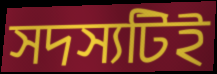
সদস্যটিই